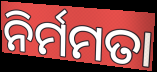
ନିର୍ମମତା